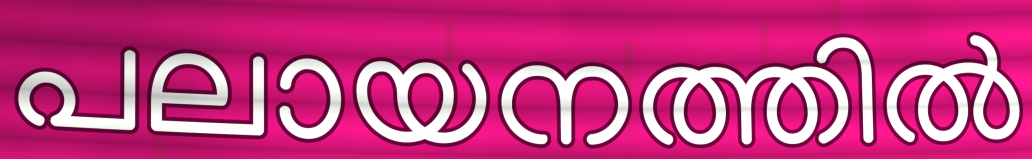
പലായനത്തിൽ